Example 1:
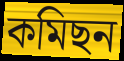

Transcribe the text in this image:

কমিছন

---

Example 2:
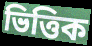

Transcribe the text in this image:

ভিত্তিক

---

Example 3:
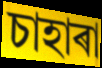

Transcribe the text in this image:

চাহাৰা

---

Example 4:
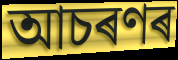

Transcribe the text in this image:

আচৰণৰ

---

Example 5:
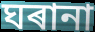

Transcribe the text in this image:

ঘৰানা